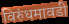
विरुंधमावडी